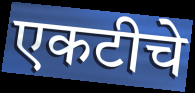
एकटीचे